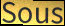
Sous